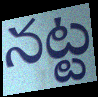
నట్ట